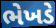
ભેખડે